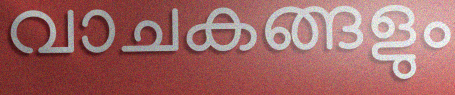
വാചകങ്ങളും